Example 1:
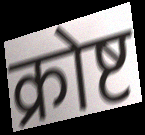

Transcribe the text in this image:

क्रोष्ट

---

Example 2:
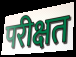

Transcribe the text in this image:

परीक्षत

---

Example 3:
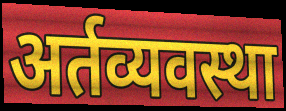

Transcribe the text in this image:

अर्तव्यवस्था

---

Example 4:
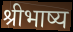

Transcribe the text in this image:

श्रीभाष्य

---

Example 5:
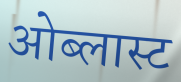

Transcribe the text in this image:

ओब्लास्ट